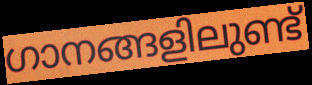
ഗാനങ്ങളിലുണ്ട്